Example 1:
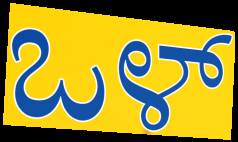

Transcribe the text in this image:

ಒಳ್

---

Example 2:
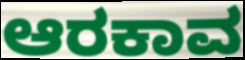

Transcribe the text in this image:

ಆರಕಾವ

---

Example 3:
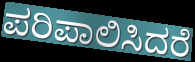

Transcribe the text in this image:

ಪರಿಪಾಲಿಸಿದರೆ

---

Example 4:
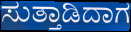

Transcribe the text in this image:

ಸುತ್ತಾಡಿದಾಗ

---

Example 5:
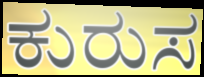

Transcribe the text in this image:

ಕುರುಸ